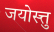
जयोस्त्तु